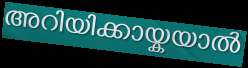
അറിയിക്കായ്കയാൽ